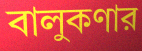
বালুকণার